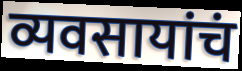
व्यवसायांचं